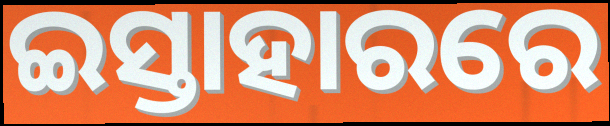
ଇସ୍ତାହାରରେ